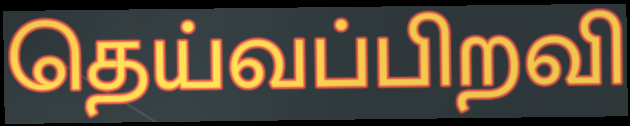
தெய்வப்பிறவி